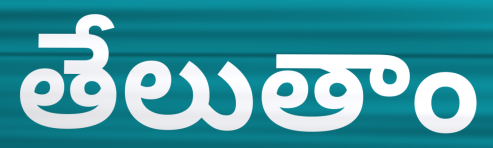
తేలుతాం